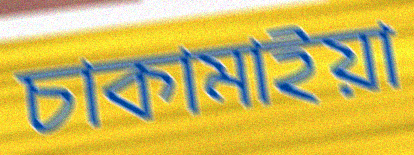
চাকামাইয়া